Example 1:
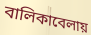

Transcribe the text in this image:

বালিকাবেলায়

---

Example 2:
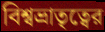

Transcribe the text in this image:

বিশ্বভ্রাতৃত্বের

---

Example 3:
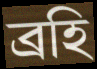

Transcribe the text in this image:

ব্রহি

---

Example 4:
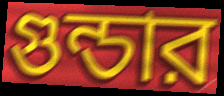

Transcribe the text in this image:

গুন্ডার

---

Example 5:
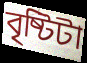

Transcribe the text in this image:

বৃষ্টিটা